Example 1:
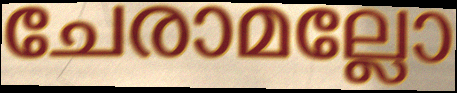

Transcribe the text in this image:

ചേരാമല്ലോ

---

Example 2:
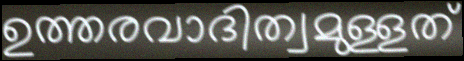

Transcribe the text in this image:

ഉത്തരവാദിത്വമുള്ളത്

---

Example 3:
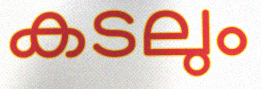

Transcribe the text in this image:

കടലും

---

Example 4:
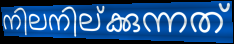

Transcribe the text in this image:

നിലനില്ക്കുന്നത്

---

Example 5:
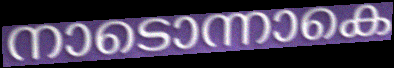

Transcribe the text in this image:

നാടൊന്നാകെ